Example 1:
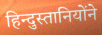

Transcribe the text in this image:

हिन्दुस्तानियोंने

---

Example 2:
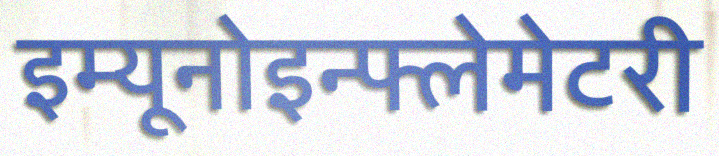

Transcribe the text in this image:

इम्यूनोइन्फ्लेमेटरी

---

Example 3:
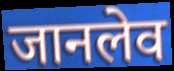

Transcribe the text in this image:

जानलेव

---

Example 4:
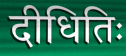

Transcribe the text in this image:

दीधितिः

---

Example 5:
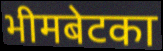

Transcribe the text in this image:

भीमबेटका